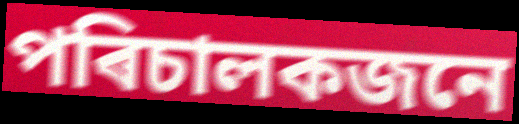
পৰিচালকজনে